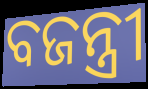
ବଜନ୍ତ୍ରୀ